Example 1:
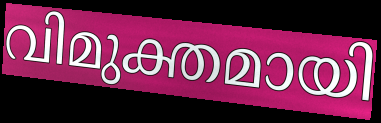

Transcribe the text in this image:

വിമുക്തമായി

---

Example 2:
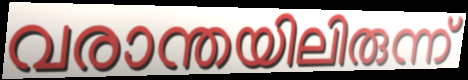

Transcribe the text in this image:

വരാന്തയിലിരുന്ന്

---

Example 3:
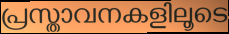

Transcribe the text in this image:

പ്രസ്താവനകളിലൂടെ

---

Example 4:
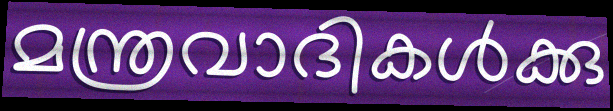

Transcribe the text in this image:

മന്ത്രവാദികൾക്കു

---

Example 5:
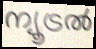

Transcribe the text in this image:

ന്യൂട്രൽ